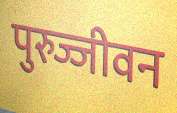
पुरुज्जीवन